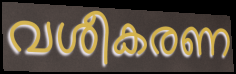
വശീകരണ